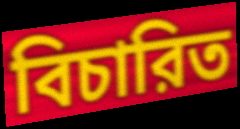
বিচারিত